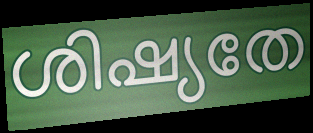
ശിഷ്യതേ